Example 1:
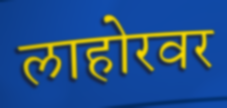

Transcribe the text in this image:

लाहोरवर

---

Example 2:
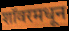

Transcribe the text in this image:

शॉवरमधून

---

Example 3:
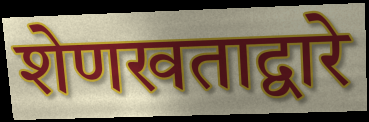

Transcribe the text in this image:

शेणखताद्वारे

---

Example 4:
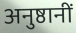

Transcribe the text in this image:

अनुष्ठानीं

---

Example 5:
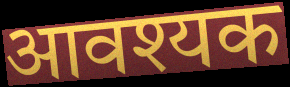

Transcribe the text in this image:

आवश्‍यक